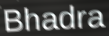
Bhadra